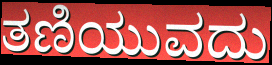
ತಣಿಯುವದು